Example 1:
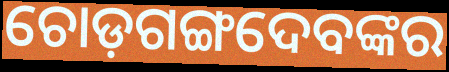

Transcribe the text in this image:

ଚୋଡ଼ଗଙ୍ଗଦେବଙ୍କର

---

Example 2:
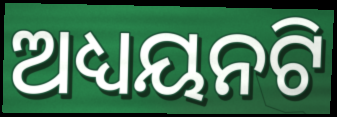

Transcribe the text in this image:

ଅଧ୍ୟୟନଟି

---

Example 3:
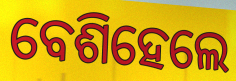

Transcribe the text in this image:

ବେଶିହେଲେ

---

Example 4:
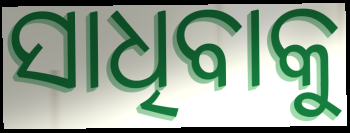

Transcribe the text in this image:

ସାଧିବାକୁ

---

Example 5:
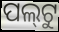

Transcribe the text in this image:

ପଲ୍‍ଟୁ